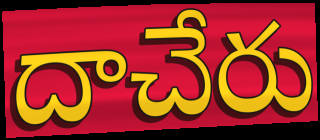
దాచేరు